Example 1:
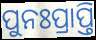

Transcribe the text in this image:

ପୁନଃପ୍ରାପ୍ତି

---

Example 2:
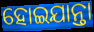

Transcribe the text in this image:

ହୋଇଯାନ୍ତା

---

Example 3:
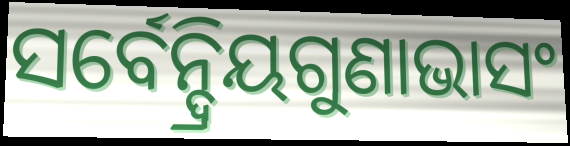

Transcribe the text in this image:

ସର୍ବେନ୍ଦ୍ରିୟଗୁଣାଭାସଂ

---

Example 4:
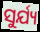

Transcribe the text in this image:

ସୁର୍ଯ୍ୟ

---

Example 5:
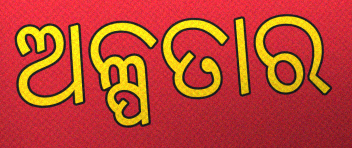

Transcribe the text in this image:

ଅଳ୍ପତାର